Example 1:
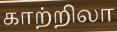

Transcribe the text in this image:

காற்றிலா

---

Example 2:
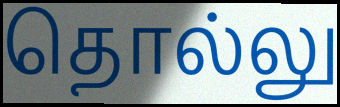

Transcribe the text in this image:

தொல்லு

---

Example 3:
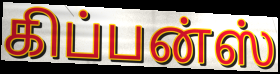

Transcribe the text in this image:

கிப்பன்ஸ்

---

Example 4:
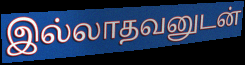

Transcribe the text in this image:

இல்லாதவனுடன்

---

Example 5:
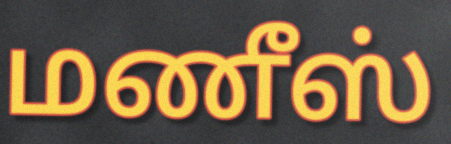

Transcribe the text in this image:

மணீஸ்